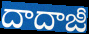
దాదాజీ